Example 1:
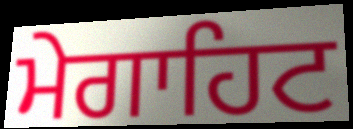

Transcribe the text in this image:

ਮੇਗਾਹਿਟ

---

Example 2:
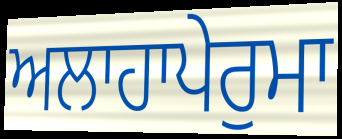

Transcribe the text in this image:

ਅਲਾਹਾਪੇਰੁਮਾ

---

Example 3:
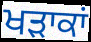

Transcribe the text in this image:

ਖੜਾਕਾਂ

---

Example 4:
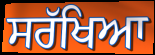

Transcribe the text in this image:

ਸਰੱਖਿਆ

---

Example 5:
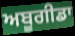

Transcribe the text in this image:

ਅਬੂਗੀਡਾ